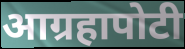
आग्रहापोटी